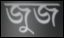
জুজ